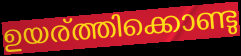
ഉയര്ത്തിക്കൊണ്ടു